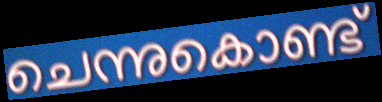
ചെന്നുകൊണ്ട്